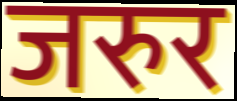
जरुर